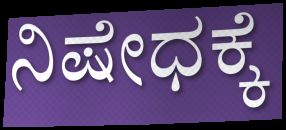
ನಿಷೇಧಕ್ಕೆ